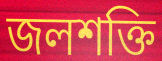
জলশক্তি